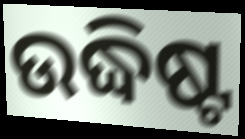
ଉଦ୍ଧିଷ୍ଟ